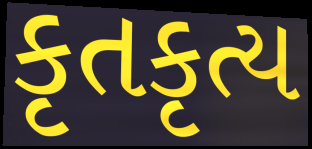
કૃતકૃત્ય